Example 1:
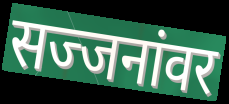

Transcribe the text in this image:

सज्जनांवर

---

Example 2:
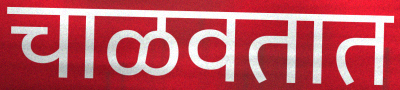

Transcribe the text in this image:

चाळवतात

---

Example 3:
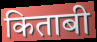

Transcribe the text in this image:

किताबी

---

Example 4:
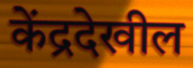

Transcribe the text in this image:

केंद्रदेखील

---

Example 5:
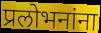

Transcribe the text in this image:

प्रलोभनांना